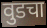
वुडचा